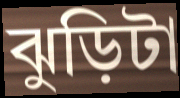
ঝুড়িটা